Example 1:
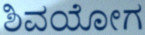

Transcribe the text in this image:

ಶಿವಯೋಗ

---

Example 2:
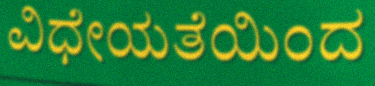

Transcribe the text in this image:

ವಿಧೇಯತೆಯಿಂದ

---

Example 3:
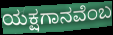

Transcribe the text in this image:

ಯಕ್ಷಗಾನವೆಂಬ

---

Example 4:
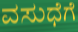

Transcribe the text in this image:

ವಸುಧೆಗೆ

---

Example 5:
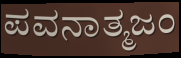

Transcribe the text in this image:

ಪವನಾತ್ಮಜಂ